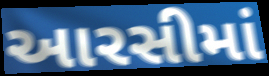
આરસીમાં